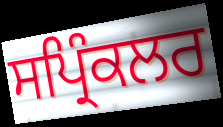
ਸਪ੍ਰਿੰਕਲਰ